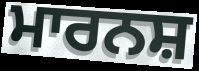
ਮਾਰਨਸ਼